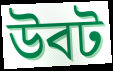
উবট